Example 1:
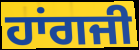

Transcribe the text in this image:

ਹਾਂਗਜੀ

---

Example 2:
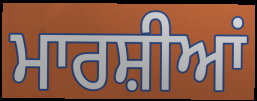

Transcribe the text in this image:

ਮਾਰਸ਼ੀਆਂ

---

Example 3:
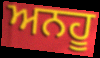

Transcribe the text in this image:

ਅਨਹੂ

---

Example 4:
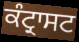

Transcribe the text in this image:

ਕੰਟ੍ਰਾਸਟ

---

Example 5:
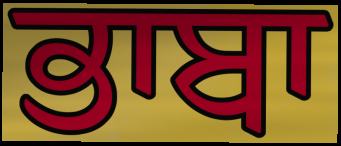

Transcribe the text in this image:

ਭਾਬਾ